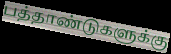
பத்தாண்டுகளுக்கு